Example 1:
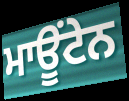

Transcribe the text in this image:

ਮਾਊਂਟੇਨ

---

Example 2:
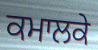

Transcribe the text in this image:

ਕਮਾਲਕੇ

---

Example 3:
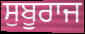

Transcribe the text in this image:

ਸੁਬੂਰਾਜ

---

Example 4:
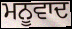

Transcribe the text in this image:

ਮਨੂਵਾਦ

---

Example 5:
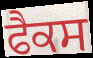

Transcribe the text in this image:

ਫੈਕਸ